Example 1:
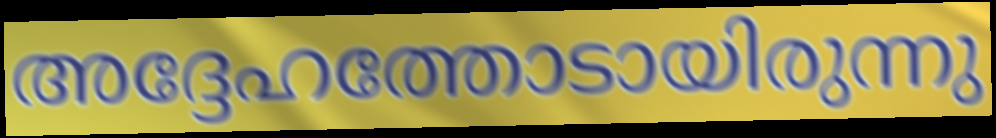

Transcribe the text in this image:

അദ്ദേഹത്തോടായിരുന്നു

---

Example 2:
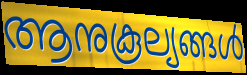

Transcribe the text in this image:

ആനുകൂല്യങ്ങൾ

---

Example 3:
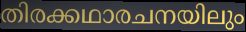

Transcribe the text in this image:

തിരക്കഥാരചനയിലും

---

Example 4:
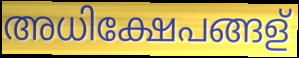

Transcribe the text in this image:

അധിക്ഷേപങ്ങള്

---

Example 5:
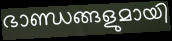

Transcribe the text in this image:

ഭാണ്ഡങ്ങളുമായി